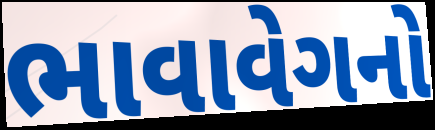
ભાવાવેગનો